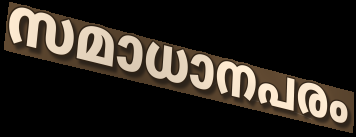
സമാധാനപരം